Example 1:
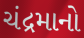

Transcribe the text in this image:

ચંદ્રમાનો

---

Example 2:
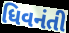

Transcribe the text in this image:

ધિવનંતી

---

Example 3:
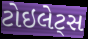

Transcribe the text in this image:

ટોઇલેટ્સ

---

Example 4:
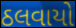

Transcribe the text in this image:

ઠલવાયો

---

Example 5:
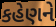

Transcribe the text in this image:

કહેણને